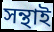
সন্থাই